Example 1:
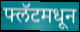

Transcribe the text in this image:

फ्लॅटमधून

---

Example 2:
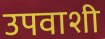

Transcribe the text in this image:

उपवाशी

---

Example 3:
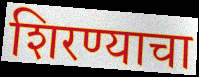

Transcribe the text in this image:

शिरण्याचा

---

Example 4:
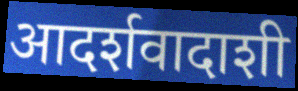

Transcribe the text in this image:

आदर्शवादाशी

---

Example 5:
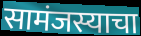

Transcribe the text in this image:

सामंजस्याचा